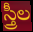
స్త్రీల